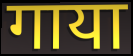
गाया